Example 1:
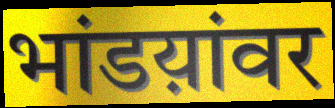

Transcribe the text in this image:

भांडय़ांवर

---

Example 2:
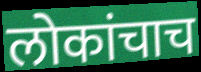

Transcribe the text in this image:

लोकांचाच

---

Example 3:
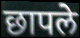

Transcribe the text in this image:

छापले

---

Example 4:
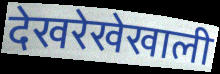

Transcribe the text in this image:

देखरेखेखाली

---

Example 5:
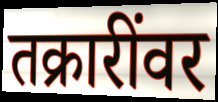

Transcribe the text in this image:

तक्रारींवर